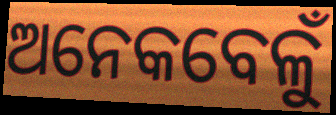
ଅନେକବେଳୁଁ